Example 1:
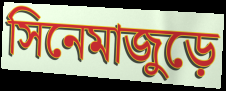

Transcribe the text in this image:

সিনেমাজুড়ে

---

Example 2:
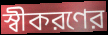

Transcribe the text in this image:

স্বীকরণের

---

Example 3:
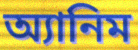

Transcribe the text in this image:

অ্যানিম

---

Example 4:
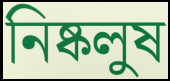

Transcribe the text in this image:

নিষ্কলুষ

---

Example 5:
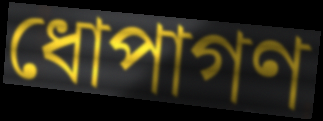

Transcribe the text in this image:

ধোপাগণ